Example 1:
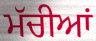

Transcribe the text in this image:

ਮੱਚੀਆਂ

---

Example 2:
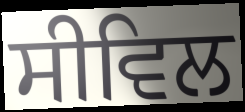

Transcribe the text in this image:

ਸੀਵਿਲ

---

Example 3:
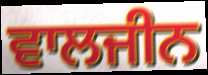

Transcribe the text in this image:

ਵਾਲਜੀਨ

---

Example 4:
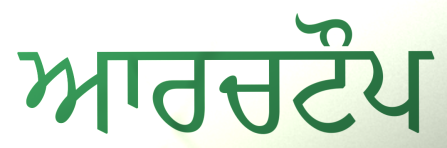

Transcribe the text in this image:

ਆਰਚਟੌਪ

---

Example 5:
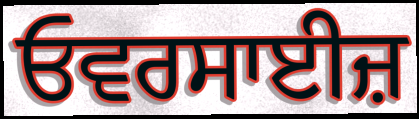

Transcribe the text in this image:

ਓਵਰਸਾਈਜ਼